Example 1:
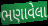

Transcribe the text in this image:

ભણાવેલા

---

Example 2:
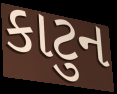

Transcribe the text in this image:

કાટુન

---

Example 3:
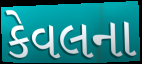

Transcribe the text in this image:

કેવલના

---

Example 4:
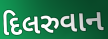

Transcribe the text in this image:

દિલરુવાન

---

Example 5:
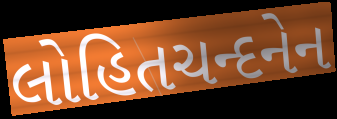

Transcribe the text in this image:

લોહિતચન્દનેન